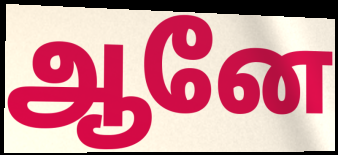
ஆனே